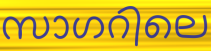
സാഗറിലെ